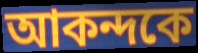
আকন্দকে